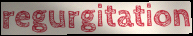
regurgitation